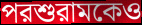
পরশুরামকেও